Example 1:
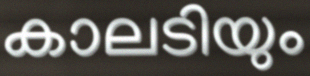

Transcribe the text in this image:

കാലടിയും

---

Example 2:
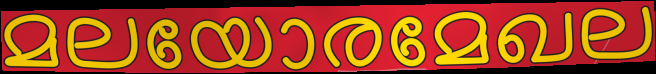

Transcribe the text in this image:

മലയോരമേഖല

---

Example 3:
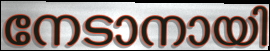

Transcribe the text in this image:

നേടാനായി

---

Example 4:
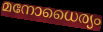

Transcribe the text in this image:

മനോധൈര്യം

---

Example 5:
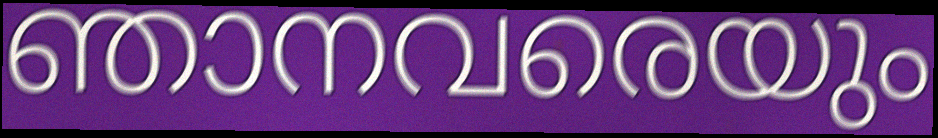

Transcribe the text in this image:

ഞാനവരെയും